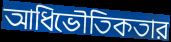
আধিভৌতিকতার